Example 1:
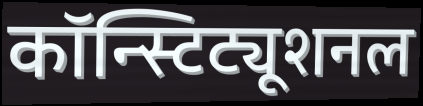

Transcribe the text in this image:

कॉन्स्टिट्यूशनल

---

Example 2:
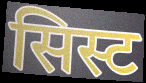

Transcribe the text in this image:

सिस्ट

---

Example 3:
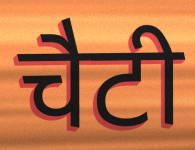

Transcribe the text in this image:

चैटी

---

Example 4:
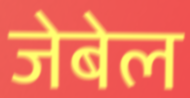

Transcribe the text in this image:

जेबेल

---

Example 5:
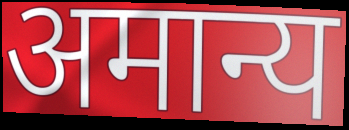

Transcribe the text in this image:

अमान्य